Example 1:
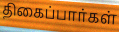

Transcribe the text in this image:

திகைப்பார்கள்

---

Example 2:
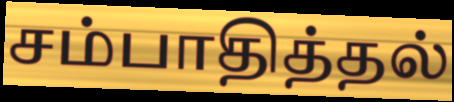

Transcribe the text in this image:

சம்பாதித்தல்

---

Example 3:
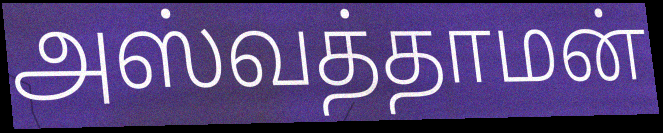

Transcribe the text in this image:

அஸ்வத்தாமன்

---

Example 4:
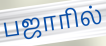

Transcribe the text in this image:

பஜாரில்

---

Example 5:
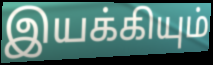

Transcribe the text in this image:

இயக்கியும்